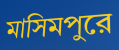
মাসিমপুরে